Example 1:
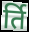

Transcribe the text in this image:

र्ति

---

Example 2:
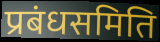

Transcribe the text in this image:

प्रबंधसमिति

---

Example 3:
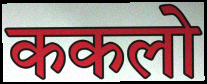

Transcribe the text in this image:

ककलो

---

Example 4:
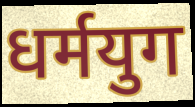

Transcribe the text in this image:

धर्मयुग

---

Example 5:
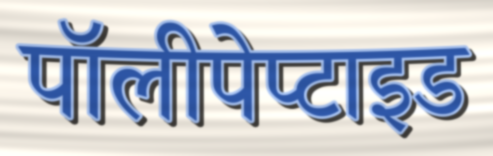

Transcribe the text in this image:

पॉलीपेप्टाइड